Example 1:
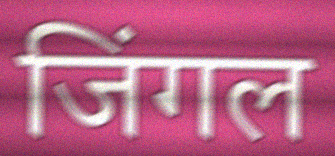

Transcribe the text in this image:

जिंगल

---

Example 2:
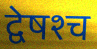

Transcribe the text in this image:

द्वेषश्च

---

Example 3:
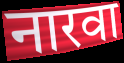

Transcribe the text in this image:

नारवा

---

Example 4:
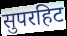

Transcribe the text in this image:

सुपरहिट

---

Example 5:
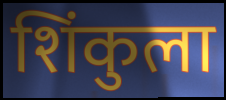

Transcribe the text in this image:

शिंकुला